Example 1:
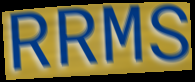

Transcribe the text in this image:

RRMS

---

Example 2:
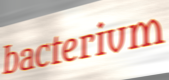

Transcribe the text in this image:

bacterium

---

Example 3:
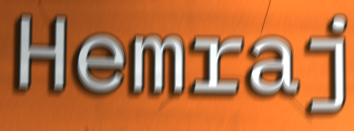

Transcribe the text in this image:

Hemraj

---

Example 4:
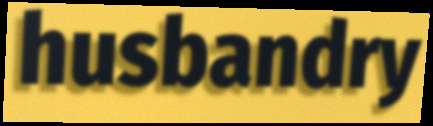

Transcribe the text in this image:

husbandry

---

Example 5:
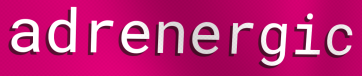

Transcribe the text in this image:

adrenergic